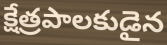
క్షేత్రపాలకుడైన